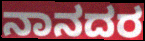
ನಾನದರ